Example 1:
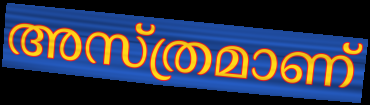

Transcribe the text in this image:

അസ്ത്രമാണ്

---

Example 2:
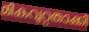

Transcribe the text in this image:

മികവുറ്റതാക്കി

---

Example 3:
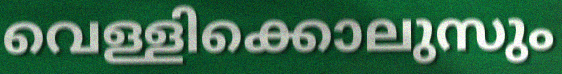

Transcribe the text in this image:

വെള്ളിക്കൊലുസും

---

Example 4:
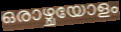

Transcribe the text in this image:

ഒരാഴ്ചയോളം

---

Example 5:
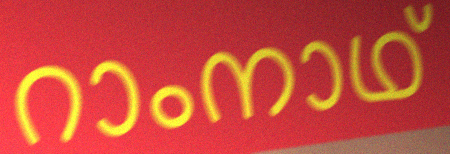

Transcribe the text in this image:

റാംനാഥ്